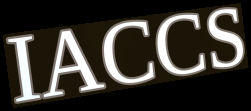
IACCS